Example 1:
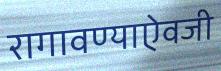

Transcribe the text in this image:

रागावण्याऐवजी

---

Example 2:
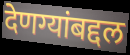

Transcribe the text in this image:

देणग्यांबद्दल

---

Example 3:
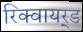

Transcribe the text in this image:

रिक्वायर्ड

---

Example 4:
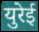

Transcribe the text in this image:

युरेई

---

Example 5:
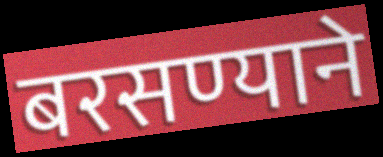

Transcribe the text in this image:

बरसण्याने